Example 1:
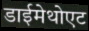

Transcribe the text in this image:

डाईमेथोएट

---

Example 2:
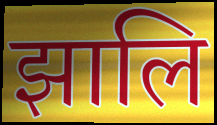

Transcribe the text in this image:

झालि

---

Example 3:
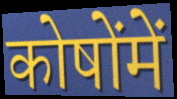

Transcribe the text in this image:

कोषोंमें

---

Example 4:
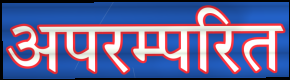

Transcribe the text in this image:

अपरम्परित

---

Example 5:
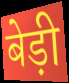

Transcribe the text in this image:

बेड़ी